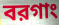
বরগাং